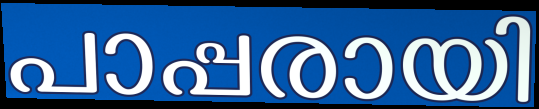
പാപ്പരായി